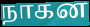
நாகன